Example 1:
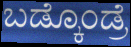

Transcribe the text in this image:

ಬಡ್ಕೊಂಡ್ರೆ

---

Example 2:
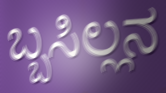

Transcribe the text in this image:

ಬ್ಬಸಿಲ್ಲನ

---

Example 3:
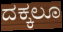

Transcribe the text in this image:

ದಕ್ಕಲೂ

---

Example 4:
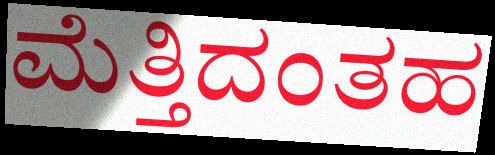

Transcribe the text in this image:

ಮೆತ್ತಿದಂತಹ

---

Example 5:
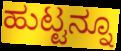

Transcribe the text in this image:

ಹುಟ್ಟನ್ನೂ